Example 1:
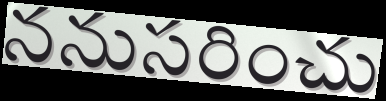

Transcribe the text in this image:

ననుసరించు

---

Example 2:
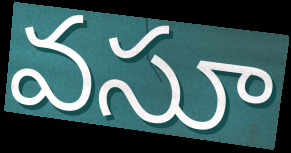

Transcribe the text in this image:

వసూ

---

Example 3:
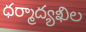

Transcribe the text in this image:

ధర్మాద్యఖిల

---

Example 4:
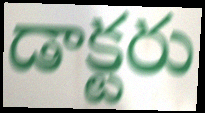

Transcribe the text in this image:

డాక్టరు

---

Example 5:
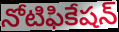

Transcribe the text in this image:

నోటిఫికేషన్